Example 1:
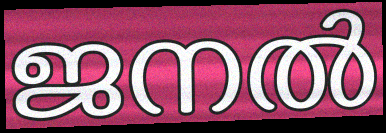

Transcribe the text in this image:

ജനൽ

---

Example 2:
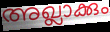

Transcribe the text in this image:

അഖ്ലാക്കും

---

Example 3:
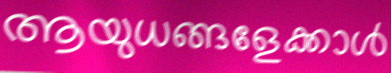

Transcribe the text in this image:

ആയുധങ്ങളേക്കാൾ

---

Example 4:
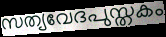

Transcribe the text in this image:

സത്യവേദപുസ്തകം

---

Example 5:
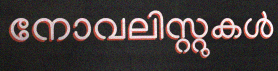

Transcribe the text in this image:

നോവലിസ്റ്റുകൾ